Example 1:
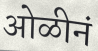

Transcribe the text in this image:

ओळीनं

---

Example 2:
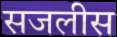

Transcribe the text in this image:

सजलीस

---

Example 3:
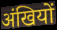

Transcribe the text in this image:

अंखियों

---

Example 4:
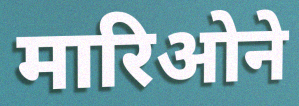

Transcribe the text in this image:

मारिओने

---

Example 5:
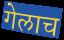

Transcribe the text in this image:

गेलाच